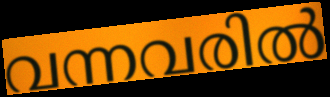
വന്നവരിൽ